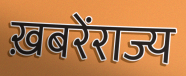
ख़बरेंराज्य